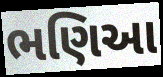
ભણિઆ